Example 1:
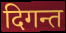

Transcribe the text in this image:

दिगन्त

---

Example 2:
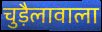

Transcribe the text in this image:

चुड़ैलावाला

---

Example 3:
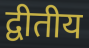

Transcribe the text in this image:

द्वीतीय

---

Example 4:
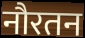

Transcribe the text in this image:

नौरतन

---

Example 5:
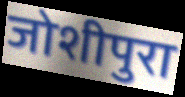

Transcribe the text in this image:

जोशीपुरा